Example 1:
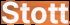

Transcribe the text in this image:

Stott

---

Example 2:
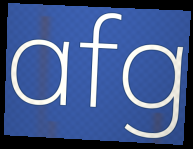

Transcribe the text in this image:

afg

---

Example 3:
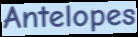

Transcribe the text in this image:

Antelopes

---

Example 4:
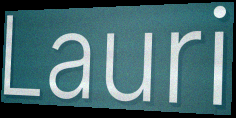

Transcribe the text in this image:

Lauri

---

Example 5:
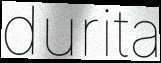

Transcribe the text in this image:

durita